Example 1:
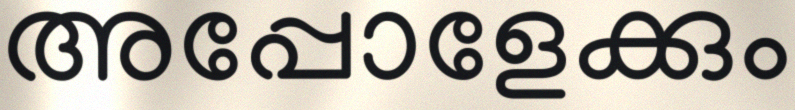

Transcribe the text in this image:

അപ്പോളേക്കും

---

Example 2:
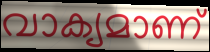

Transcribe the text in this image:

വാക്യമാണ്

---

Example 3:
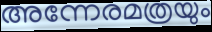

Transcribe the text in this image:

അന്നേരമത്രയും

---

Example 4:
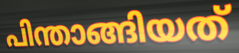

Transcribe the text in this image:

പിന്താങ്ങിയത്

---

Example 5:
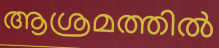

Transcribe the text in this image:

ആശ്രമത്തിൽ